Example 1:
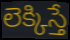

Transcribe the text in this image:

లెక్కిస్తే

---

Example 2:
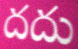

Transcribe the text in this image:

దదు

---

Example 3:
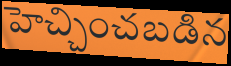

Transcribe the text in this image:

హెచ్చించబడిన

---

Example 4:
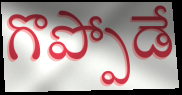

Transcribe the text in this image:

గొప్పోడే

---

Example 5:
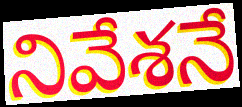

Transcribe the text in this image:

నివేశనే